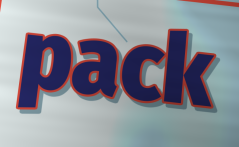
pack